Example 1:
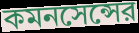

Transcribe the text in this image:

কমনসেন্সের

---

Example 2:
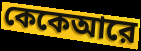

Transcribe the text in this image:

কেকেআরে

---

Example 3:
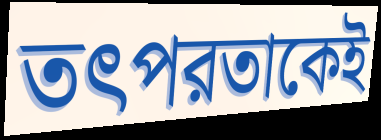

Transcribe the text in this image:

তৎপরতাকেই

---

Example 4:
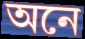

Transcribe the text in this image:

অনে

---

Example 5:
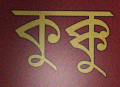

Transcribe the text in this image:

কুক্কু